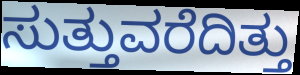
ಸುತ್ತುವರೆದಿತ್ತು